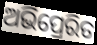
ଅଭିପ୍ରେରିତ